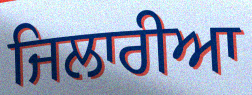
ਜਿਲਾਰੀਆ